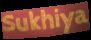
Sukhiya